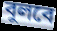
বুলবে